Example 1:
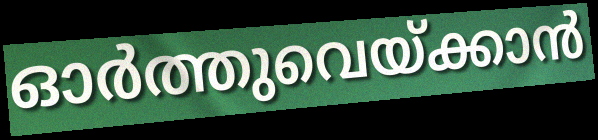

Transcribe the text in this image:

ഓർത്തുവെയ്ക്കാൻ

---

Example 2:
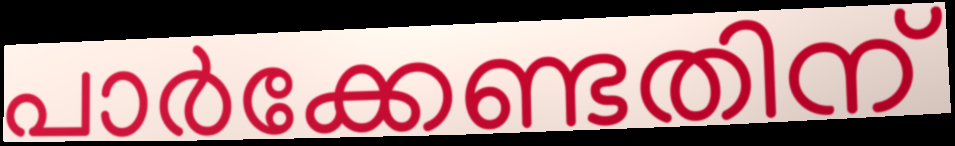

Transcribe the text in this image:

പാർക്കേണ്ടതിന്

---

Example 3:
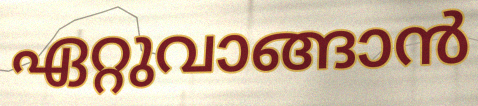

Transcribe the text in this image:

ഏറ്റുവാങ്ങാൻ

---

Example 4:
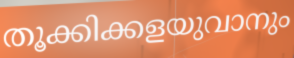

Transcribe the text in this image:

തൂക്കിക്കളയുവാനും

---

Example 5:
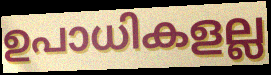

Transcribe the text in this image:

ഉപാധികളല്ല